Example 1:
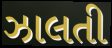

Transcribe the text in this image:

ઝાલતી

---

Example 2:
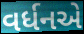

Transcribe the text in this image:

વર્ધનએ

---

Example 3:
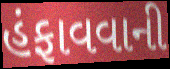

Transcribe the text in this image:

હંફાવવાની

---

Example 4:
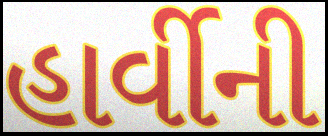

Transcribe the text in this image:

હાર્વીની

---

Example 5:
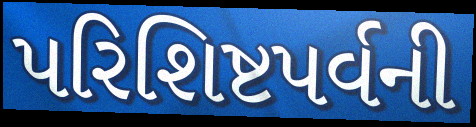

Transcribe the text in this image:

પરિશિષ્ટપર્વની